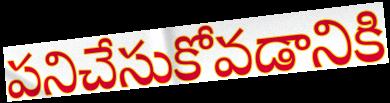
పనిచేసుకోవడానికి